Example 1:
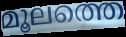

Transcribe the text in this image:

മൂലത്തെ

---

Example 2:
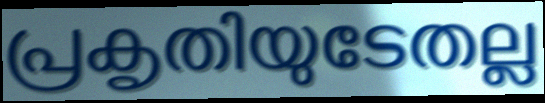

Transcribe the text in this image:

പ്രകൃതിയുടേതല്ല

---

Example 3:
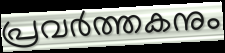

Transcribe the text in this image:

പ്രവർത്തകനും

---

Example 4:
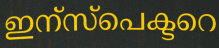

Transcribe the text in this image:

ഇന്സ്പെക്ടറെ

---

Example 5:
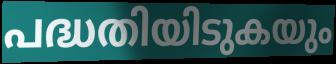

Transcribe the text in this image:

പദ്ധതിയിടുകയും